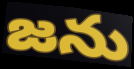
జను